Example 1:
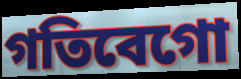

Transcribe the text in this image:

গতিবেগো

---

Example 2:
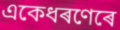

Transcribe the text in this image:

একেধৰণেৰে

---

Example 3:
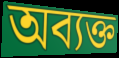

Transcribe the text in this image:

অব্যক্ত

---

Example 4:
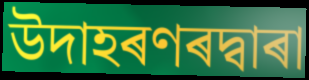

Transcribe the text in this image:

উদাহৰণৰদ্বাৰা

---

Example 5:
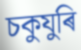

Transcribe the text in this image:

চকুযুৰি